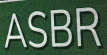
ASBR